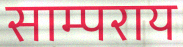
साम्पराय